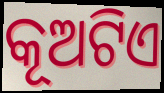
କୂଅଟିଏ